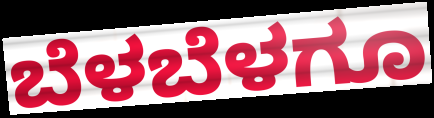
ಬೆಳಬೆಳಗೂ